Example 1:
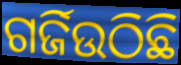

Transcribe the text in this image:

ଗର୍ଜିଉଠିଛି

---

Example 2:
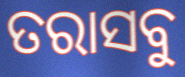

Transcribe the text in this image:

ତରାସବୁ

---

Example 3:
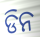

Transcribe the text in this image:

ଡିନ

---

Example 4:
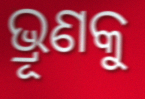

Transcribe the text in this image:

ଭ୍ରୂଣକୁ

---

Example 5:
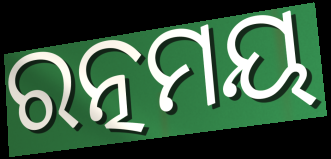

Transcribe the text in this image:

ରତ୍ନମୟ